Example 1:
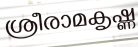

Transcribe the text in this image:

ശ്രീരാമകൃഷ്ണ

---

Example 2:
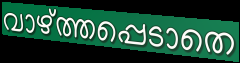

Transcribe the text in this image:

വാഴ്ത്തപ്പെടാതെ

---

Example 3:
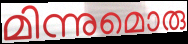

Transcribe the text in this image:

മിന്നുമൊരു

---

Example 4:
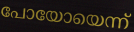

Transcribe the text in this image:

പോയോയെന്ന്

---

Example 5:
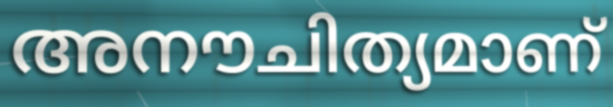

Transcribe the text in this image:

അനൗചിത്യമാണ്